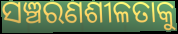
ସଞ୍ଚରଣଶୀଳତାକୁ